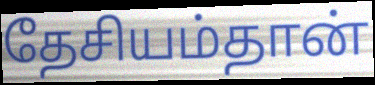
தேசியம்தான்